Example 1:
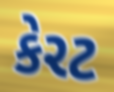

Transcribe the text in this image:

કેરટ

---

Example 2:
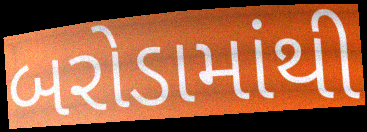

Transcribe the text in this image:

બરોડામાંથી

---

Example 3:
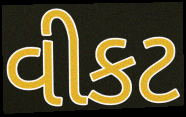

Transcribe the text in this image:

વીકટ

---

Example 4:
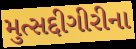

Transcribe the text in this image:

મુત્સદ્દીગીરીના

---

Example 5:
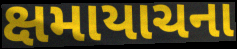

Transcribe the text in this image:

ક્ષમાયાચના